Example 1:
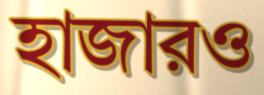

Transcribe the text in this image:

হাজারও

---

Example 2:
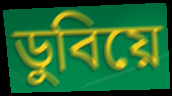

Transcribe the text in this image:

ডুবিয়ে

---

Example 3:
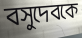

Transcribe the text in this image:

বসুদেবকে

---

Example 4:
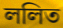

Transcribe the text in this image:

ললিত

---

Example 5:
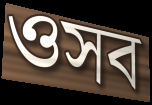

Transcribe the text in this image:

ওসব